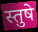
स्तुषे